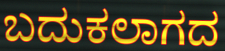
ಬದುಕಲಾಗದ